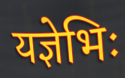
यज्ञेभिः